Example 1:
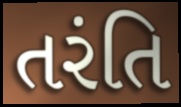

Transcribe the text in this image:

તરંતિ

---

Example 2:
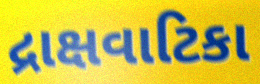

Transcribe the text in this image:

દ્રાક્ષવાટિકા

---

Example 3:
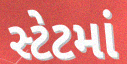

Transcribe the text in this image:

સ્ટેટમાં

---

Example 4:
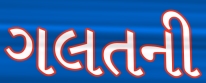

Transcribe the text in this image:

ગલતની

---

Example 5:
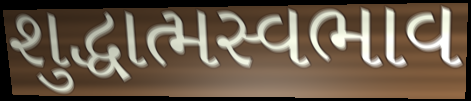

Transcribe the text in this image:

શુદ્ધાત્મસ્વભાવ